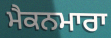
ਮੈਕਨਮਾਰਾ